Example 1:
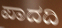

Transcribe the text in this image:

ಪಾದದಿ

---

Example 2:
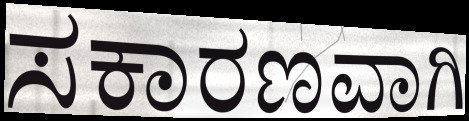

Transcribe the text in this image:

ಸಕಾರಣವಾಗಿ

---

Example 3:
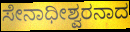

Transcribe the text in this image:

ಸೇನಾಧೀಶ್ವರನಾದ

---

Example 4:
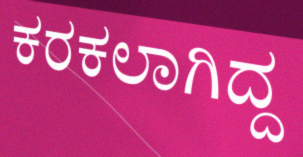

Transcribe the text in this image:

ಕರಕಲಾಗಿದ್ದ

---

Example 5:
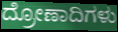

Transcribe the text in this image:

ದ್ರೋಣಾದಿಗಳು